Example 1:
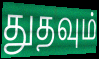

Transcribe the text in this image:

துதவும்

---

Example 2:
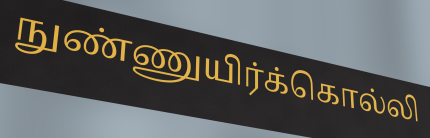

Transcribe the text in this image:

நுண்ணுயிர்க்கொல்லி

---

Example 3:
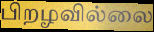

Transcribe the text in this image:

பிறழவில்லை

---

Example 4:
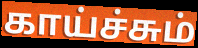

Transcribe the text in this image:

காய்ச்சும்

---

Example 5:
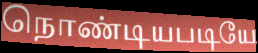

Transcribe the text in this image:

நொண்டியபடியே